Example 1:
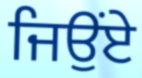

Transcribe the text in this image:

ਜਿਉਂਏ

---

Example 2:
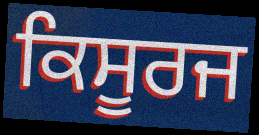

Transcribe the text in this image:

ਕਿਸੂਰਜ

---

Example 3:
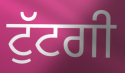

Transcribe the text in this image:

ਟੁੱਟਗੀ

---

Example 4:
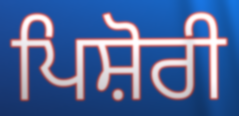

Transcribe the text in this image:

ਪਿਸ਼ੋਰੀ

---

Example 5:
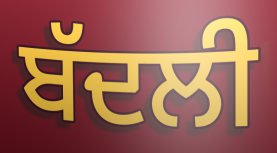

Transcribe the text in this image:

ਬੱਦਲੀ